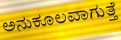
ಅನುಕೂಲವಾಗುತ್ತೆ